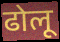
ढोलू